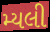
મ્યલી